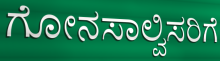
ಗೋನಸಾಲ್ವಿಸರಿಗೆ